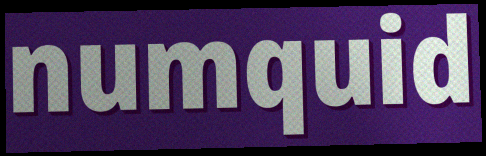
numquid